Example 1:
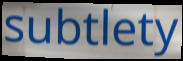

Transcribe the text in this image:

subtlety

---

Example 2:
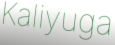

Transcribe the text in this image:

Kaliyuga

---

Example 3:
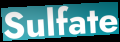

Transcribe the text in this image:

Sulfate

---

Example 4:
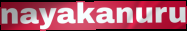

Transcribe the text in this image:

nayakanuru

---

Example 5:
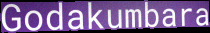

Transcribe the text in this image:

Godakumbara